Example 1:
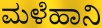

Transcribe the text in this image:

ಮಳೆಹಾನಿ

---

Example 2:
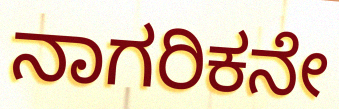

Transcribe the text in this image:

ನಾಗರಿಕನೇ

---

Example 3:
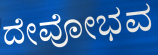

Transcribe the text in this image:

ದೇವೋಭವ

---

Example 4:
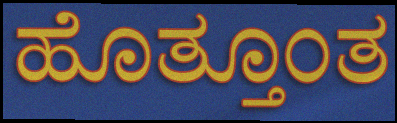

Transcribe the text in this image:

ಹೊತ್ತೂಂತ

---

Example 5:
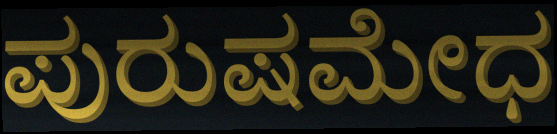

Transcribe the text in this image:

ಪುರುಷಮೇಧ